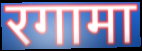
रगामा